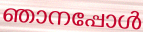
ഞാനപ്പോൾ